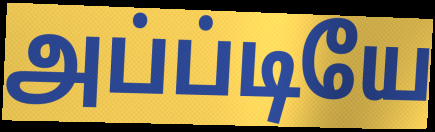
அப்ப்டியே